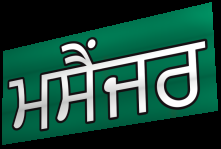
ਮਸੈਂਜਰ